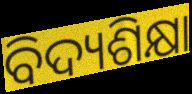
ବିଦ୍ୟଶିକ୍ଷା